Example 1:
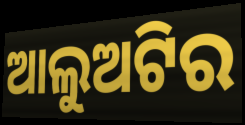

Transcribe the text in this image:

ଆଲୁଅଟିର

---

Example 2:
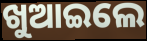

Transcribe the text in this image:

ଖୁଆଇଲେ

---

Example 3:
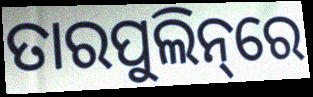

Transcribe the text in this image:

ତାରପୁଲିନ୍‌ରେ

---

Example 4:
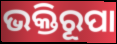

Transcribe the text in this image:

ଭକ୍ତିରୂପା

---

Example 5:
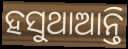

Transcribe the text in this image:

ହସୁଥାଆନ୍ତି